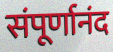
संपूर्णानंद